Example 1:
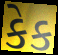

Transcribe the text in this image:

કેક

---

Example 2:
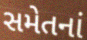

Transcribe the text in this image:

સમેતનાં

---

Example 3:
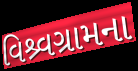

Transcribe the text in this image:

વિશ્ર્વગ્રામના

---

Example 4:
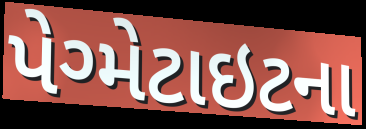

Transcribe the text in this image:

પેગ્મેટાઇટના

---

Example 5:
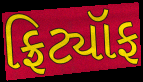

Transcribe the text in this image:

ફ્રિટ્યૉફ